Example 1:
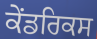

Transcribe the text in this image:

ਕੇਂਡਰਿਕਸ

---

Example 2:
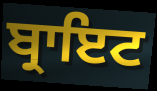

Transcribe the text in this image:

ਬ੍ਰਾਇਟ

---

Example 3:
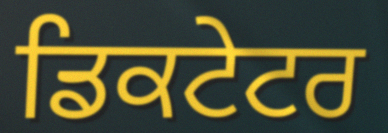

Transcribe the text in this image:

ਡਿਕਟੇਟਰ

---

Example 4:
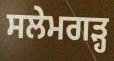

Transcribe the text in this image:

ਸਲੇਮਗੜ੍ਹ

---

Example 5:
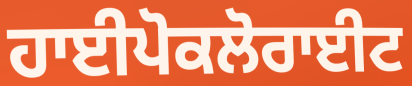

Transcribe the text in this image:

ਹਾਈਪੋਕਲੋਰਾਈਟ